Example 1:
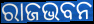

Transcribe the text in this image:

ରାଜଭବନ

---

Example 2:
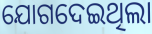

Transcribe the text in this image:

ଯୋଗଦେଇଥିଲା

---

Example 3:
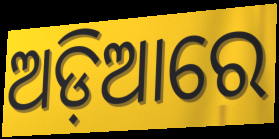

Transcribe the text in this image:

ଅଡ଼ିଆରେ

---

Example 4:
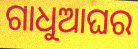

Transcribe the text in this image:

ଗାଧୁଆଘର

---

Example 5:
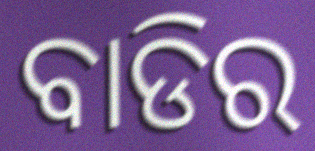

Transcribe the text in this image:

ବାଡିର